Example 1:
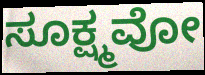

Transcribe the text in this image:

ಸೂಕ್ಷ್ಮವೋ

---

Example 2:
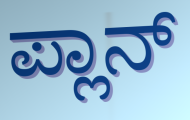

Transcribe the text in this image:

ಪ್ಲಾನ್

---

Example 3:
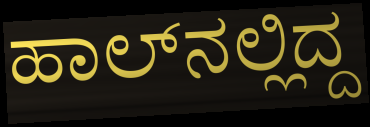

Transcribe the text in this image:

ಹಾಲ್‌ನಲ್ಲಿದ್ದ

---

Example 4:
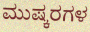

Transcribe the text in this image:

ಮುಷ್ಕರಗಳ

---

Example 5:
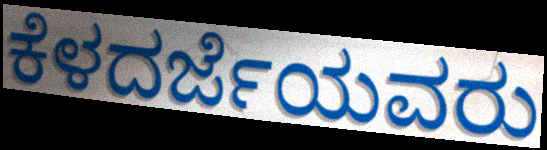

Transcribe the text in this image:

ಕೆಳದರ್ಜೆಯವರು